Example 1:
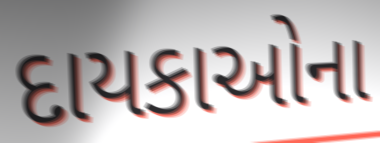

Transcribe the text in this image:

દાયકાઓના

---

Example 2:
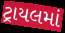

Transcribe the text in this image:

ટ્રાયલમાં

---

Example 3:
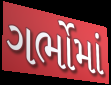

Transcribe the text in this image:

ગર્ભોમાં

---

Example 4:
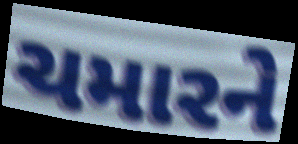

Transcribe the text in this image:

ચમારને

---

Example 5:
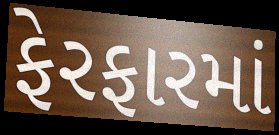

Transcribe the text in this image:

ફેરફારમાં